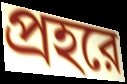
প্রহরে